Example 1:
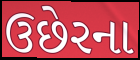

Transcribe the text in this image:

ઉછેરના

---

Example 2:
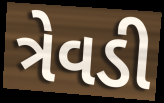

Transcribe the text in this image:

ત્રેવડી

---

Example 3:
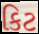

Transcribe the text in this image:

કિટ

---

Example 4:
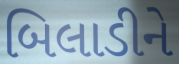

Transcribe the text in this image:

બિલાડીને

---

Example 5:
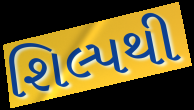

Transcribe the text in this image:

શિલ્પથી